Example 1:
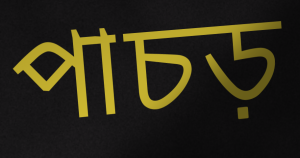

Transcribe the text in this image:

পাচড়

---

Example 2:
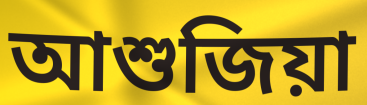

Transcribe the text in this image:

আশুজিয়া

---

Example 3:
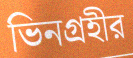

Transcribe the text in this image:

ভিনগ্রহীর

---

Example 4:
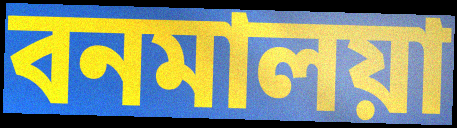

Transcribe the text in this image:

বনমালয়া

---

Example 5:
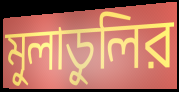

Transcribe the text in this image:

মুলাডুলির